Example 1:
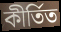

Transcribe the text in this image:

কীর্তিত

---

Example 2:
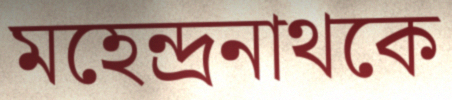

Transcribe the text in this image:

মহেন্দ্রনাথকে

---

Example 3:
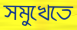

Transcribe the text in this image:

সমুখেতে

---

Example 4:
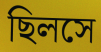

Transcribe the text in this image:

ছিলসে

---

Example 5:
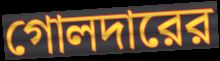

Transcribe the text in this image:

গোলদারের